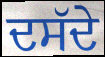
ਦਸੱਦੇ